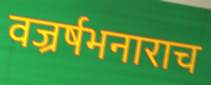
वज्रर्षभनाराच